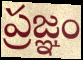
ప్రజ్ఞం